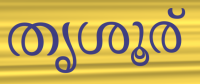
തൃശൂര്